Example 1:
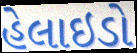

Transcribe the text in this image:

હેલાઇડો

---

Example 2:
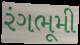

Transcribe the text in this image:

રંગભૂમી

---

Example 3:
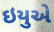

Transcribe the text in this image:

ઇયુએ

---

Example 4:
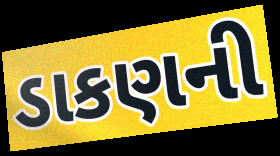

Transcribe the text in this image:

ડાકણની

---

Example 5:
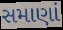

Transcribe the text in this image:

સમાણાં